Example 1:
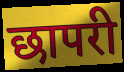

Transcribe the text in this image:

छापरी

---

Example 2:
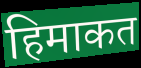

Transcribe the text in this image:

हिमाकत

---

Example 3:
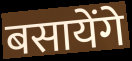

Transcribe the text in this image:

बसायेंगे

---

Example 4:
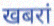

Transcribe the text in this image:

खबरां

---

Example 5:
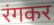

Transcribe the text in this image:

रंगकर